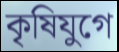
কৃষিযুগে